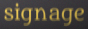
signage